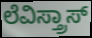
ಲೆವಿಸ್ತ್ರಾಸ್